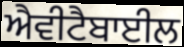
ਐਵੀਟੈਬਾਈਲ